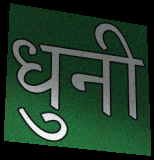
धुनी